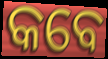
କବେ